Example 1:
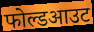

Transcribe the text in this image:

फोल्डआउट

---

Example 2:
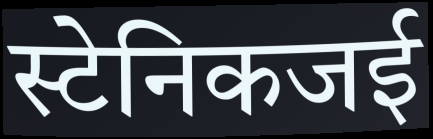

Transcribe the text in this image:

स्टेनिकजई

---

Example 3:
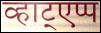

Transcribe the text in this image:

व्हाट्एप्प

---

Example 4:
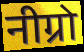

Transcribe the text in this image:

नीग्रो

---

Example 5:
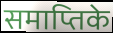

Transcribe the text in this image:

समाप्तिके